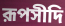
রূপসীদি